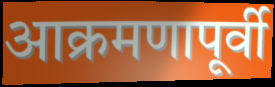
आक्रमणापूर्वी